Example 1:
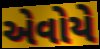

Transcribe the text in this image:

એવોયે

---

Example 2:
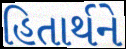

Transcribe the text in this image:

હિતાર્થને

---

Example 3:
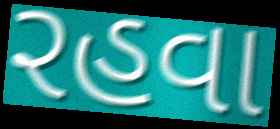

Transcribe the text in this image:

રહવા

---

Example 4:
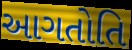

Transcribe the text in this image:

આગતોતિ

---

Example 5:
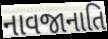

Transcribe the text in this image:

નાવજાનાતિ